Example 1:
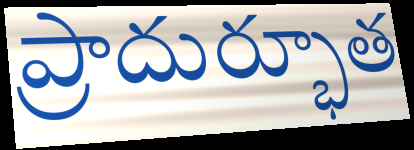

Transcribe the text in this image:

ప్రాదుర్భూత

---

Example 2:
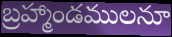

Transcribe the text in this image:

బ్రహ్మాండములనూ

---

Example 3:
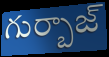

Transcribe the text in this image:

గుర్బాజ్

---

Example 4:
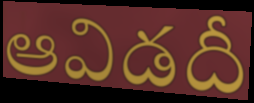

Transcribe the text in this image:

ఆవిడదీ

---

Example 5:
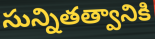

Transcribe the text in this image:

సున్నితత్వానికి